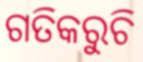
ଗତିକରୁଚି